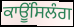
ਕਾਊਂਸਿਲੰਗ